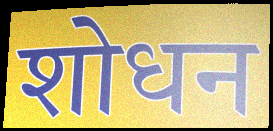
शोधन